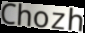
Chozh